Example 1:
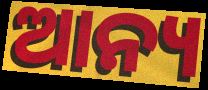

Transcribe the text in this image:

ଆନ୍ୟ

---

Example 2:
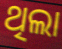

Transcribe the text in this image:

ଥିଲା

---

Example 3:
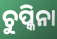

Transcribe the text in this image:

ଚୁପ୍କିନା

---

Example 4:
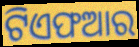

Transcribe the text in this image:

ଟିଏଫଆର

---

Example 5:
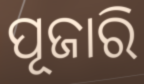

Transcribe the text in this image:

ପୂଜାରି